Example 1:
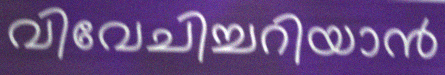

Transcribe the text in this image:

വിവേചിച്ചറിയാൻ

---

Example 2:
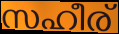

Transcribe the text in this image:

സഹീര്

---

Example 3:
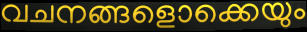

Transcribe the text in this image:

വചനങ്ങളൊക്കെയും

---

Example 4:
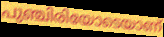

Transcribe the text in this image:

പുഞ്ചിരിയോടെയാണ്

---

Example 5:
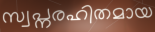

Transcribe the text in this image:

സ്വപ്നരഹിതമായ